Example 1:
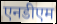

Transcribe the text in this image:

एनडीएम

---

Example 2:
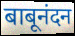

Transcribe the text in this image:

बाबूनंदन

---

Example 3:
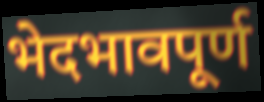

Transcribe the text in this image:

भेदभावपूर्ण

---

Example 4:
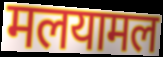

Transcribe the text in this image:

मलयामल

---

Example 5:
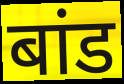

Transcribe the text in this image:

बांड